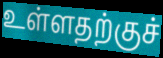
உள்ளதற்குச்